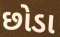
છોડા